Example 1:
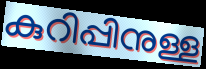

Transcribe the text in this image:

കുറിപ്പിനുള്ള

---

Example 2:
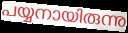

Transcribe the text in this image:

പയ്യനായിരുന്നു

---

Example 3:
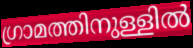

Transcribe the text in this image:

ഗ്രാമത്തിനുള്ളിൽ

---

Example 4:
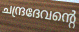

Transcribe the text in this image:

ചന്ദ്രദേവന്റെ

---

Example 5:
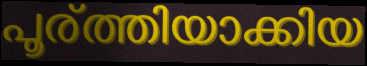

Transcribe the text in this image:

പൂര്ത്തിയാക്കിയ